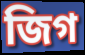
জিগ